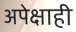
अपेक्षाही